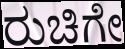
ರುಚಿಗೇ